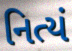
નિત્યં